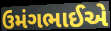
ઉમંગભાઈએ